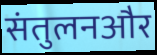
संतुलनऔर